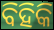
ବିହିକି